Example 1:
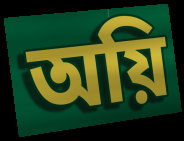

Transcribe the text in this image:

অয়ি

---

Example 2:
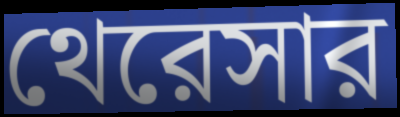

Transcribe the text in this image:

থেরেসার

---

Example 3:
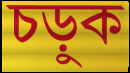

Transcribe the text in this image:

চড়ুক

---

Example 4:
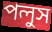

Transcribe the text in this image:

পলুস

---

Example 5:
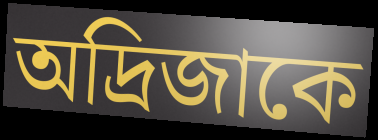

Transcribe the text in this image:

অদ্রিজাকে